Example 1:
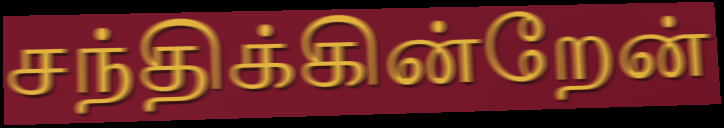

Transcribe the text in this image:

சந்திக்கின்றேன்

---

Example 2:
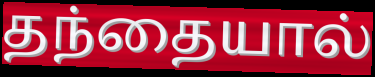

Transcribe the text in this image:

தந்தையால்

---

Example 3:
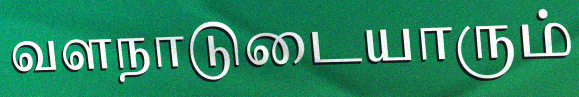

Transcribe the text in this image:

வளநாடுடையாரும்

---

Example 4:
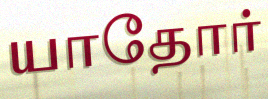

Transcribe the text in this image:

யாதோர்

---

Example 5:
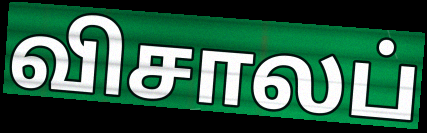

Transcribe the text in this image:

விசாலப்